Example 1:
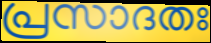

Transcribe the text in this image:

പ്രസാദതഃ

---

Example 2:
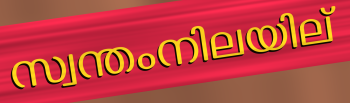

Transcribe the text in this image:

സ്വന്തംനിലയില്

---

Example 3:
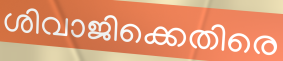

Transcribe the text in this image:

ശിവാജിക്കെതിരെ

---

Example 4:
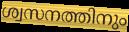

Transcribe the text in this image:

ശ്വസനത്തിനും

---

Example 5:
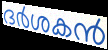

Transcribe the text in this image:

ദർശകൻ